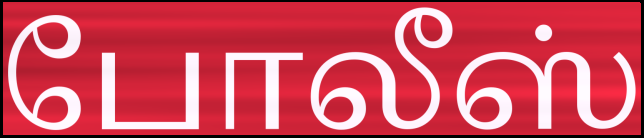
போலீஸ்